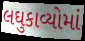
લઘુકાવ્યોમાં